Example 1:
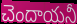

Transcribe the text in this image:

చెందాయనీ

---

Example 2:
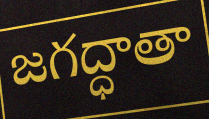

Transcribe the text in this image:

జగద్ధాతా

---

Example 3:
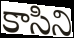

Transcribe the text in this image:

కాసిని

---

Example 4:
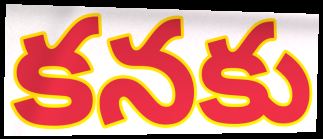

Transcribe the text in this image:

కనకు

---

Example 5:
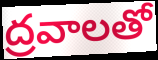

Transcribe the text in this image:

ద్రవాలతో